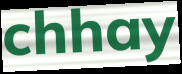
chhay